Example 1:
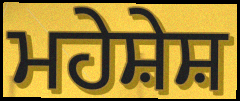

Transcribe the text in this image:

ਮਹੇਸ਼ੇਸ਼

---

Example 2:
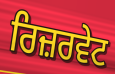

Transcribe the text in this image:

ਰਿਜ਼ਰਵੇਟ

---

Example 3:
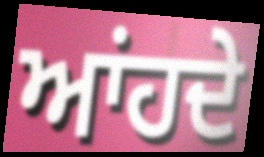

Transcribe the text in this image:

ਆਂਹਦੇ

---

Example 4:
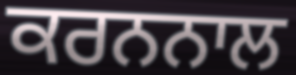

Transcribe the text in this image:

ਕਰਨਨਾਲ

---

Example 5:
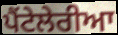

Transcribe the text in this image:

ਪੈਂਟੇਲੇਰੀਆ